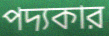
পদ্যকার